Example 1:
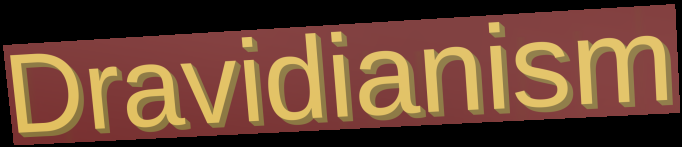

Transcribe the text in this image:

Dravidianism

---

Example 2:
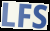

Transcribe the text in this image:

LFS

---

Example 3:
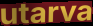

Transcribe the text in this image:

utarva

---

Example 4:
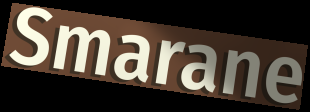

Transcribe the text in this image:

Smarane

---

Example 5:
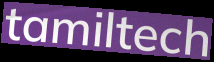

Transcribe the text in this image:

tamiltech